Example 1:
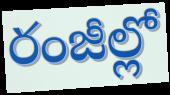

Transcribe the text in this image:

రంజీల్లో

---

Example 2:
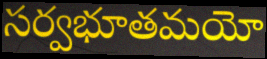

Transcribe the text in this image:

సర్వభూతమయో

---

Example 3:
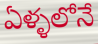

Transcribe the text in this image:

ఏళ్ళలోనే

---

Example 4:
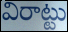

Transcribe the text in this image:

విరాట్టు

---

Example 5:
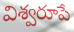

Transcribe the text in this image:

విశ్వరూపే